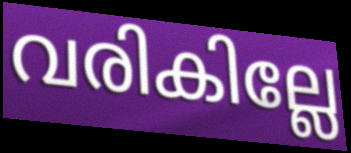
വരികില്ലേ